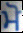
ਮੋ